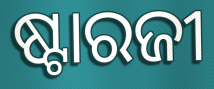
ଷ୍ଟାରଜୀ